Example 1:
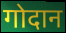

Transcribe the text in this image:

गोदान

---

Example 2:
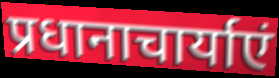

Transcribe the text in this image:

प्रधानाचार्याएं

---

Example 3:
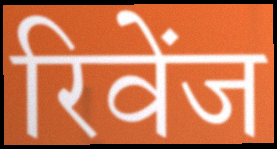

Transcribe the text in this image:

रिवेंज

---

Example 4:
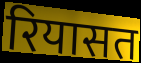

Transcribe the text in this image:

रियासत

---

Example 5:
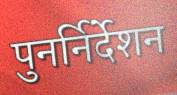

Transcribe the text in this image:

पुनर्निर्देशन